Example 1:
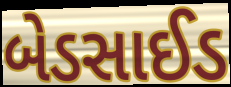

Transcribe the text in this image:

બેડસાઈડ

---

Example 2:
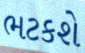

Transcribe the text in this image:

ભટકશે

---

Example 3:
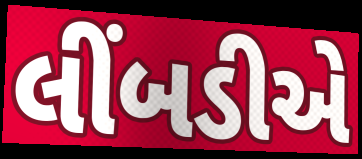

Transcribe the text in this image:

લીંબડીએ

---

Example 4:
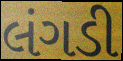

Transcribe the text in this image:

લંગડી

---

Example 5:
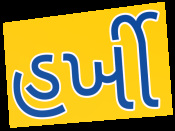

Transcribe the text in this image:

હર્ખી